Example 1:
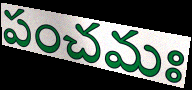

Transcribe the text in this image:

పంచమః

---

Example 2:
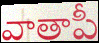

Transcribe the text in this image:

వాతాపీ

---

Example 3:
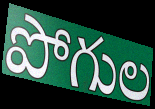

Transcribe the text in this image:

పోగుల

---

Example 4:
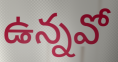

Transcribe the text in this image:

ఉన్నవో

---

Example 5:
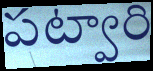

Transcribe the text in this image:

పట్వారి